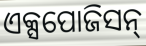
ଏକ୍ସପୋଜିସନ୍